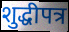
शुद्धीपत्र